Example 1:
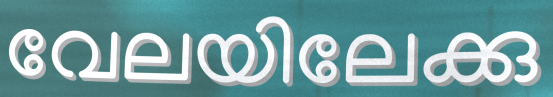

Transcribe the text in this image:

വേലയിലേക്കു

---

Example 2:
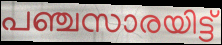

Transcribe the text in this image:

പഞ്ചസാരയിട്ട്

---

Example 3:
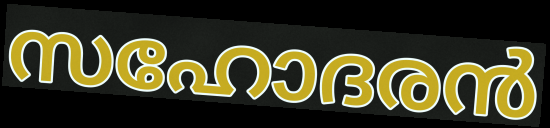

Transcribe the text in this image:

സഹോദരൻ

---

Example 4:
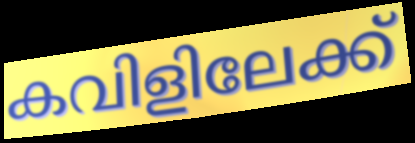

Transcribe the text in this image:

കവിളിലേക്ക്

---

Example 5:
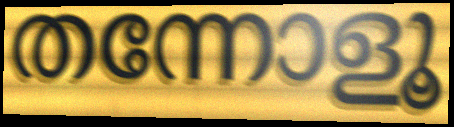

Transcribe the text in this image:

തന്നോളൂ